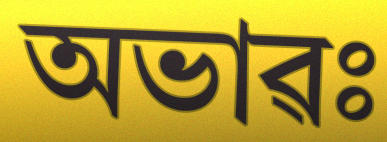
অভাৱঃ